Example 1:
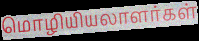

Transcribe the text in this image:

மொழியியலாளர்கள்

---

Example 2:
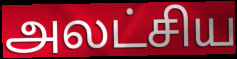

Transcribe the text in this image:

அலட்சிய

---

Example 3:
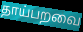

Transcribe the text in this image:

தாய்பறவை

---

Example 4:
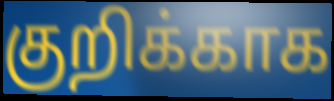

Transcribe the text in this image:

குறிக்காக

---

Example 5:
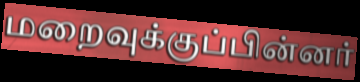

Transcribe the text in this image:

மறைவுக்குப்பின்னர்